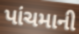
પાંચમાની